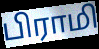
பிராமி